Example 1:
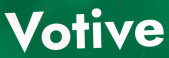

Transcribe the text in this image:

Votive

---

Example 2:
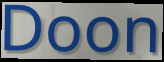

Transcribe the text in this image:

Doon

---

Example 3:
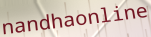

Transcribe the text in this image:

nandhaonline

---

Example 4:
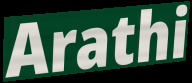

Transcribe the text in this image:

Arathi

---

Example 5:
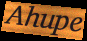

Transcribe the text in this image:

Ahupe